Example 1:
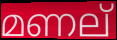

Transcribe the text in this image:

മണല്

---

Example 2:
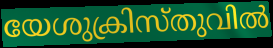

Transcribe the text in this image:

യേശുക്രിസ്തുവിൽ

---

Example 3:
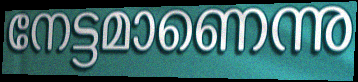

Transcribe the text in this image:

നേട്ടമാണെന്നു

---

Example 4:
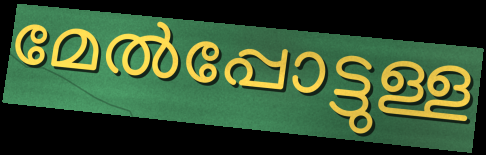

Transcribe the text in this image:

മേൽപ്പോട്ടുള്ള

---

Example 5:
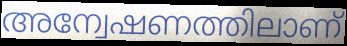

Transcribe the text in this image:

അന്വേഷണത്തിലാണ്